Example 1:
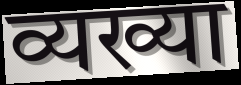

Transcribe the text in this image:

व्यख्या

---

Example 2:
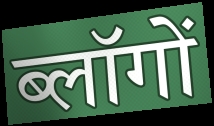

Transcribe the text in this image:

ब्‍लॉगों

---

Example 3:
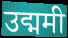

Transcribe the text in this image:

उद्ममी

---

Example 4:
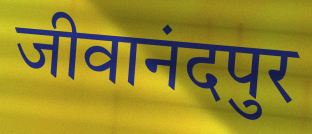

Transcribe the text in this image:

जीवानंदपुर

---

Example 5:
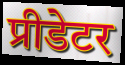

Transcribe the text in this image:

प्रीडेटर